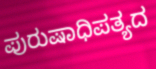
ಪುರುಷಾಧಿಪತ್ಯದ